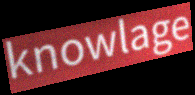
knowlage